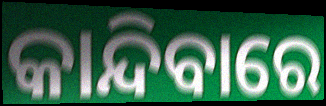
କାନ୍ଦିବାରେ